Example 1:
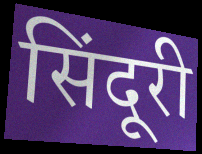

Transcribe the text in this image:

सिंदूरी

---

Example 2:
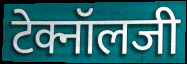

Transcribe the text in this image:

टेक्नॉलजी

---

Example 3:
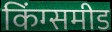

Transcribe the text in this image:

किंग्समीड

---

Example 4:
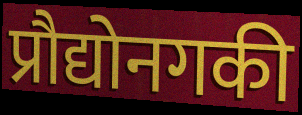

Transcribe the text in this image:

प्रौद्योनगकी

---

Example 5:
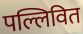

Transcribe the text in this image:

पल्लिवित